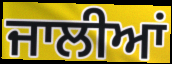
ਜਾਲੀਆਂ